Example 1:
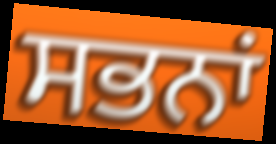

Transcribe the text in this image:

ਸਭਨਾਂ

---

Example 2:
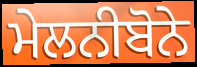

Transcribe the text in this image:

ਮੇਲਨੀਬੋਨੇ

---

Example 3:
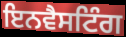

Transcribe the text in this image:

ਇਨਵੈਸਟਿੰਗ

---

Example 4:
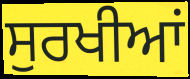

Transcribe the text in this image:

ਸੁਰਖੀਆਂ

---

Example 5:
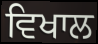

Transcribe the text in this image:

ਵਿਖਾਲ